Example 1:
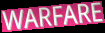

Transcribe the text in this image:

WARFARE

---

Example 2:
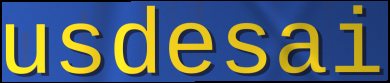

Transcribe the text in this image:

usdesai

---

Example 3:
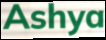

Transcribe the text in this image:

Ashya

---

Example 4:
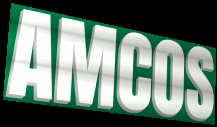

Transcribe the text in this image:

AMCOS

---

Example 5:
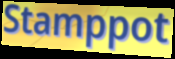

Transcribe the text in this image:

Stamppot